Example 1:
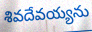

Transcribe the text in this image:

శివదేవయ్యను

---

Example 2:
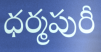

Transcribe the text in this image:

ధర్మపురీ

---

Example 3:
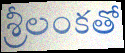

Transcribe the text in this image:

శ్రీలంకతో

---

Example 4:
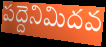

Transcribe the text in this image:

పద్దెనిమిదవ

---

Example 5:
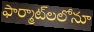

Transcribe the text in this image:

ఫార్మాట్‌లలోనూ